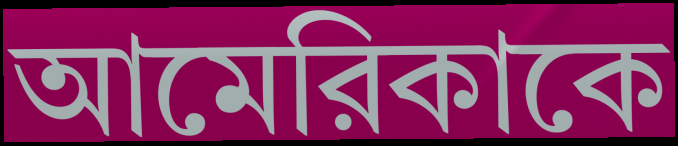
আমেরিকাকে